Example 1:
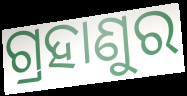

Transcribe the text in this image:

ଗ୍ରହାଣୁର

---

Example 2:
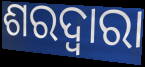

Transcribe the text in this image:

ଶରଦ୍ୱାରା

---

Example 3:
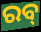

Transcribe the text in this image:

ରବ୍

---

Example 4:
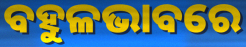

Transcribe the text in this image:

ବହୁଳଭାବରେ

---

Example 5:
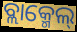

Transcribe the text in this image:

ବ୍ଲାକ୍ମେଲ୍